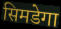
सिमडेगा